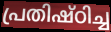
പ്രതിഷ്ഠിച്ച